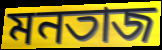
মনতাজ